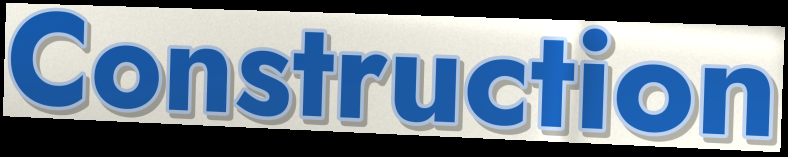
Construction